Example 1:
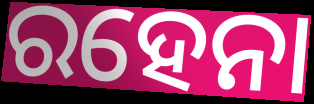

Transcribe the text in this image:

ରହେନା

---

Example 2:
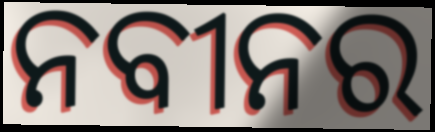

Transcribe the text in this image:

ନବୀନର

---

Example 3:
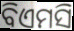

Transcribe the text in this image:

ବିଏମସି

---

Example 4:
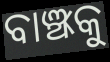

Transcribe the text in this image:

ବାଞ୍ଝକୁ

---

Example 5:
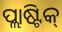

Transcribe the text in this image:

ପ୍ଲାଷ୍ଟିକ୍